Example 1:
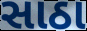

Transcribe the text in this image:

સાઠા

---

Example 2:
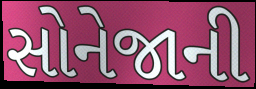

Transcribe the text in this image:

સોનેજાની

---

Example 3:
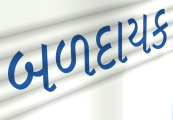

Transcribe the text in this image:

બળદાયક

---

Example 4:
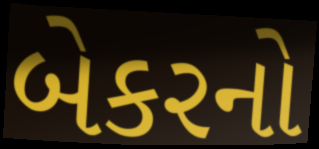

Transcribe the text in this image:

બેકરનો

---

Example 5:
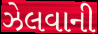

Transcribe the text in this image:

ઝેલવાની